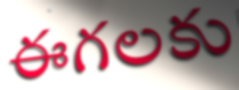
ఈగలకు